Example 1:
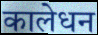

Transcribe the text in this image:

कालेधन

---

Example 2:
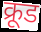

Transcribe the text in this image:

क्रूड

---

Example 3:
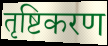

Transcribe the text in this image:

तृष्टिकरण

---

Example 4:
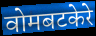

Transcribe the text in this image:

वोमबटकेरे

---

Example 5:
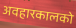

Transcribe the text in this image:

अवहारकालको